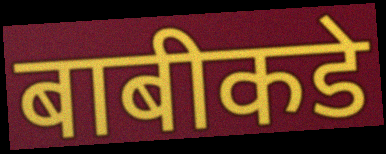
बाबीकडे